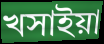
খসাইয়া